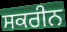
ਸਕਰੀਨ